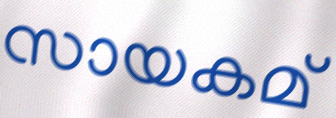
സായകമ്